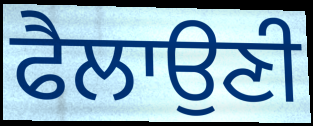
ਫੈਲਾਉਣੀ